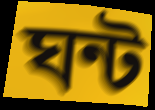
ঘন্ট